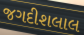
જગદીશલાલ